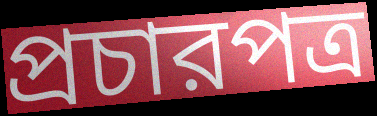
প্রচারপত্র